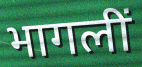
भागलीं